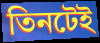
তিনটেই